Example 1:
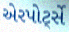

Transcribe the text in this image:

એરપોર્ટ્સે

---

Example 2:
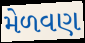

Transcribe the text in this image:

મેળવણ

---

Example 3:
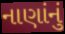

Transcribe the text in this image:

નાણાંનું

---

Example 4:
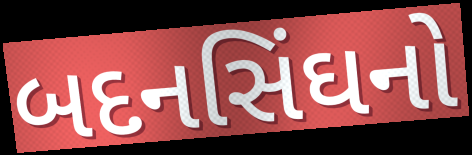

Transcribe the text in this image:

બદનસિંઘનો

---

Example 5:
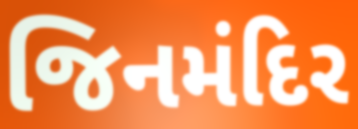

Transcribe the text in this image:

જિનમંદિર